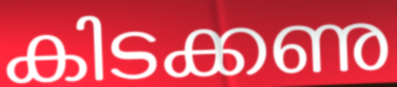
കിടക്കണു